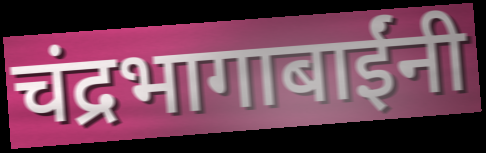
चंद्रभागाबाईंनी